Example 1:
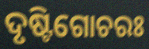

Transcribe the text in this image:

ଦୃଷ୍ଟିଗୋଚରଃ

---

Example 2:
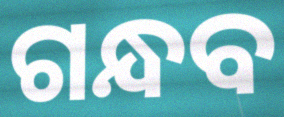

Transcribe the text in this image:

ଗନ୍ଧବ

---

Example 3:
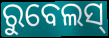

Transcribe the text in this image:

ରୁବେଲସ୍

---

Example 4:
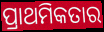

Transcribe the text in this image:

ପ୍ରାଥମିକତାର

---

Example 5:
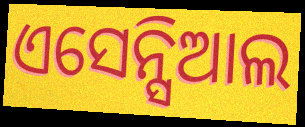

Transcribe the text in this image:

ଏସେନ୍ସିଆଲ